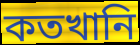
কতখানি